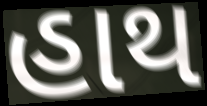
હાથ